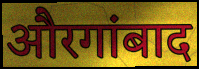
औरगांबाद